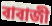
বাবাজী